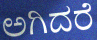
ಅಗಿದರೆ